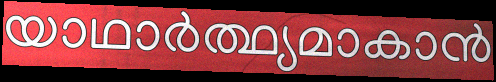
യാഥാർത്ഥ്യമാകാൻ